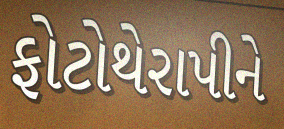
ફોટોથેરાપીને